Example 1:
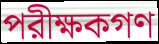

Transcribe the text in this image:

পরীক্ষকগণ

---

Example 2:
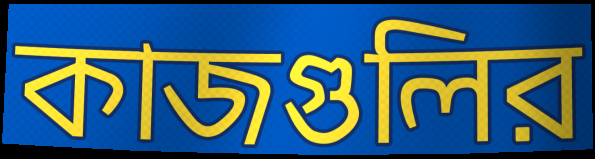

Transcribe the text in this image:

কাজগুলির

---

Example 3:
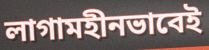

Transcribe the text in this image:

লাগামহীনভাবেই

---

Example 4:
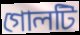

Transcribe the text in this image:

গোলটি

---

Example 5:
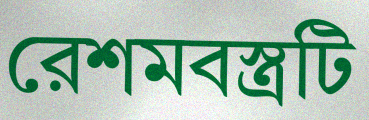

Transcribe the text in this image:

রেশমবস্ত্রটি